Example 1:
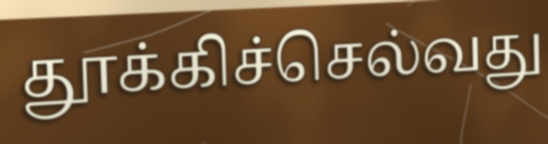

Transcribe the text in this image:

தூக்கிச்செல்வது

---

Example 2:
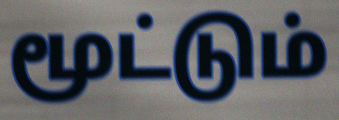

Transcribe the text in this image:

மூட்டும்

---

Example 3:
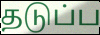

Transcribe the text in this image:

தடுப்ப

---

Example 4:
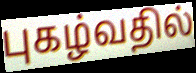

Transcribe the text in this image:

புகழ்வதில்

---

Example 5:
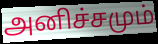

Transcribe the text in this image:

அனிச்சமும்